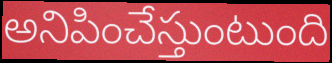
అనిపించేస్తుంటుంది